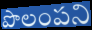
పొలంపని